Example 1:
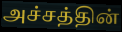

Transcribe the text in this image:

அச்சத்தின்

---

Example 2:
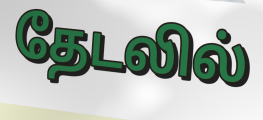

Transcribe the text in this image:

தேடலில்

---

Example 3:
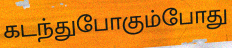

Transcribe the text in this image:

கடந்துபோகும்போது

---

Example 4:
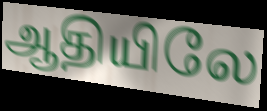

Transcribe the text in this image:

ஆதியிலே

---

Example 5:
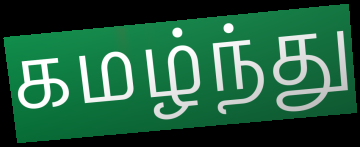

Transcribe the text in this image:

கமழ்ந்து